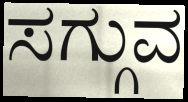
ಸಗ್ಗುವ